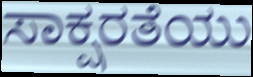
ಸಾಕ್ಷರತೆಯು